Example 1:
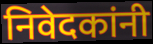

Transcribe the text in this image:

निवेदकांनी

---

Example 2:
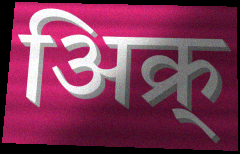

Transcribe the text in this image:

अिक्र्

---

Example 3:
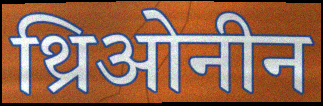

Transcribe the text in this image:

थ्रिओनीन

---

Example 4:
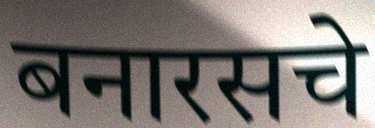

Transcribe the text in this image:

बनारसचे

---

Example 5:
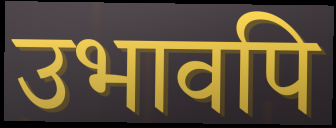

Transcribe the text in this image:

उभावपि